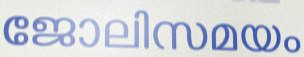
ജോലിസമയം